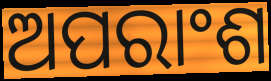
ଅପରାଂଶ